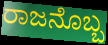
ರಾಜನೊಬ್ಬ